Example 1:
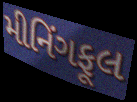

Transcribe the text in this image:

મીનિંગફૂલ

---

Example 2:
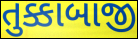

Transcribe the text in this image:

તુક્કાબાજી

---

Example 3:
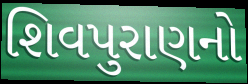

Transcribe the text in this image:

શિવપુરાણનો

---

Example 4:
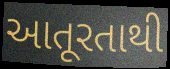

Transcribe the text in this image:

આતૂરતાથી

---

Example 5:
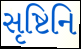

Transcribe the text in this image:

સૃષ્ટિનિ